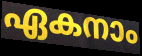
ഏകനാം